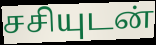
சசியுடன்